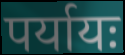
पर्यायः